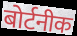
बोर्टनीक